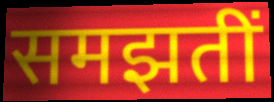
समझतीं